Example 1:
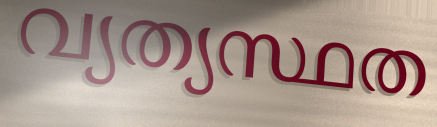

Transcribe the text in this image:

വ്യത്യസ്ഥത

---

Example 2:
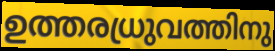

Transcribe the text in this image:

ഉത്തരധ്രുവത്തിനു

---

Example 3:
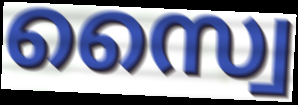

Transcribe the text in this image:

സ്വൈ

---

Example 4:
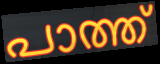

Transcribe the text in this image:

പാത്ത്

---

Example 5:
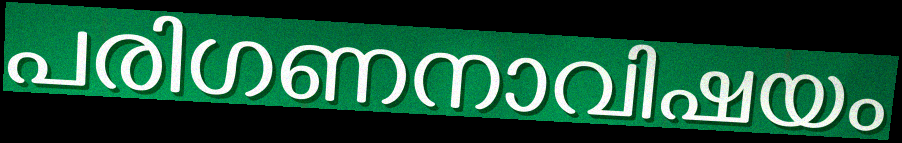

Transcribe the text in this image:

പരിഗണനാവിഷയം